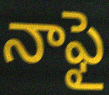
నాఫై